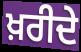
ਖ਼ਰੀਦੇ